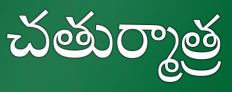
చతుర్మాత్ర